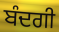
ਬੰਦਗੀ